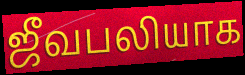
ஜீவபலியாக